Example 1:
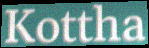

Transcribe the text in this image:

Kottha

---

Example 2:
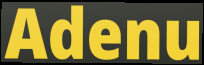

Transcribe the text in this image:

Adenu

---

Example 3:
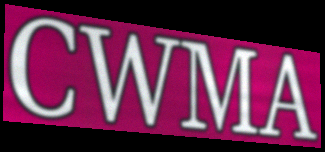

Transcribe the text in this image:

CWMA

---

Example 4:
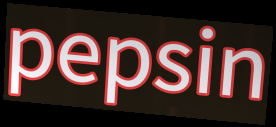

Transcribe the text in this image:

pepsin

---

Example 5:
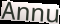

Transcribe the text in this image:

Annu